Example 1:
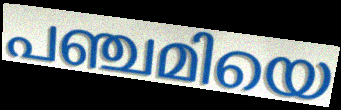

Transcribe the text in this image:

പഞ്ചമിയെ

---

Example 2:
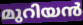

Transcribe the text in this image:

മുറിയൻ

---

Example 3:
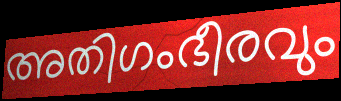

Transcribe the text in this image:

അതിഗംഭീരവും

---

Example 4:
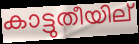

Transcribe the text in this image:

കാട്ടുതീയില്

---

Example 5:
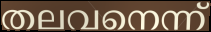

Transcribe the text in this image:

തലവനെന്ന്